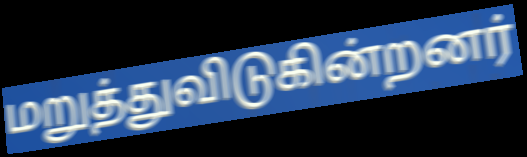
மறுத்துவிடுகின்றனர்